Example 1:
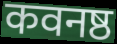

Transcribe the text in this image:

कवनष्ठ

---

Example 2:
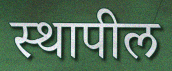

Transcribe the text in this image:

स्थापील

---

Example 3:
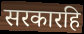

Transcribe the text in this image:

सरकारहि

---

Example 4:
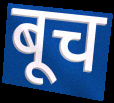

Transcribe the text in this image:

बूच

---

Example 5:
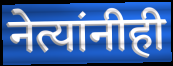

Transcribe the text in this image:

नेत्यांनीही